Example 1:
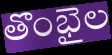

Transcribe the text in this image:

తొంభైల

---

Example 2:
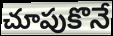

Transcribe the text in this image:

చూపుకొనే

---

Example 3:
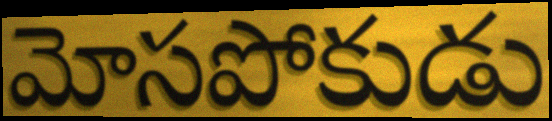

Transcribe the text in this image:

మోసపోకుడు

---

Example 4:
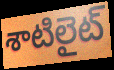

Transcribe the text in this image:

శాటిలైట్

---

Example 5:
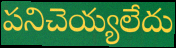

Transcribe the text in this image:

పనిచెయ్యలేదు